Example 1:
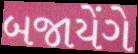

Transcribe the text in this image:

બજાયેંગે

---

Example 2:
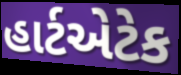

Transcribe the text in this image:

હાર્ટએટેક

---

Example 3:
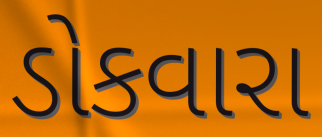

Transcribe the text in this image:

ડોકવારા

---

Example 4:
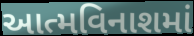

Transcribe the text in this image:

આત્મવિનાશમાં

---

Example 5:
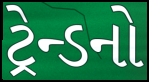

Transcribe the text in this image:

ટ્રેન્ડનો